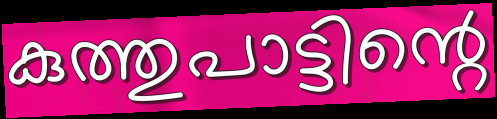
കുത്തുപാട്ടിന്റെ